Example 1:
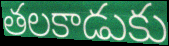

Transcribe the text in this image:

తలకాడుకు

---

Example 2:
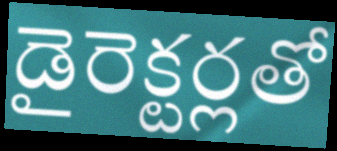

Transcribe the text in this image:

డైరెక్టర్లతో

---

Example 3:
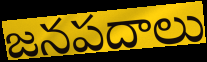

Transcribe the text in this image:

జనపదాలు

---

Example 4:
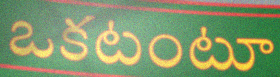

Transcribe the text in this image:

ఒకటంటూ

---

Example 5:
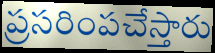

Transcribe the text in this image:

ప్రసరింపచేస్తారు